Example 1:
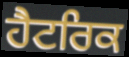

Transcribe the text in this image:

ਹੈਟਰਿਕ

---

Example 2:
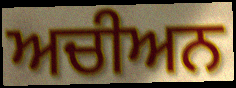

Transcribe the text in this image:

ਅਚੀਅਨ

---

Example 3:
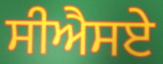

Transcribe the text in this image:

ਸੀਐਸਏ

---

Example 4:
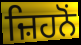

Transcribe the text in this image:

ਜ਼ਿਹਨੋਂ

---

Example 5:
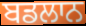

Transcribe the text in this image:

ਬਡਲਾਨ